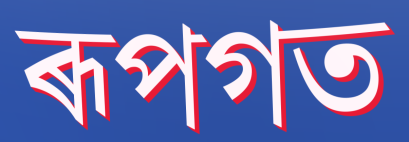
ৰূপগত